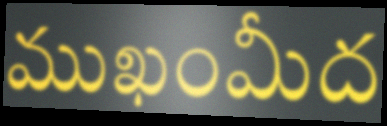
ముఖంమీద